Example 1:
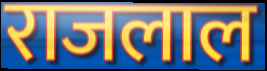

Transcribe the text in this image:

राजलाल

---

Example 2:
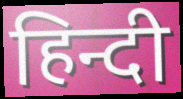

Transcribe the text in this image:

हिन्‍दी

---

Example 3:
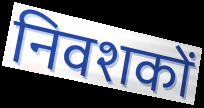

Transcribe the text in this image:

निवशकों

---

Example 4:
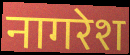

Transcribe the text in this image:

नागरेश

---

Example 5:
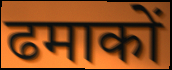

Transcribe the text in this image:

ढमाकों